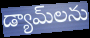
డ్యామ్‌లను